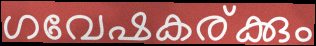
ഗവേഷകര്ക്കും